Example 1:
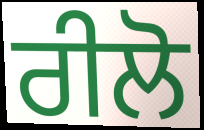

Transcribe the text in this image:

ਰੀਲੋ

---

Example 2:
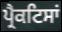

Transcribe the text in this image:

ਪ੍ਰੈਕਟਿਸਾਂ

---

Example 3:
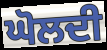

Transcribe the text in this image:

ਘੋਲਦੀ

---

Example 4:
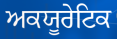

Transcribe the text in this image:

ਅਕਯੂਰੇਟਿਕ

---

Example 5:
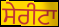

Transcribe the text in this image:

ਸੇਰੀਟਾ